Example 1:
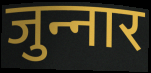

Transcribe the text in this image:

जुन्नार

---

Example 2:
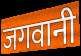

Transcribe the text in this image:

जगवानी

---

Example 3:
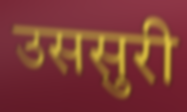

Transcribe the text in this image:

उससुरी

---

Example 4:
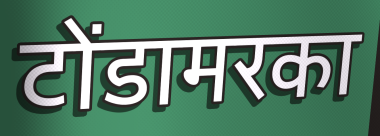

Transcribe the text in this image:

टोंडामरका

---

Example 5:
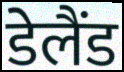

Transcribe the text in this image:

डेलैंड